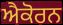
ਐਕੋਰਨ